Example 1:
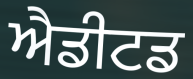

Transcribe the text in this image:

ਐਡੀਟਡ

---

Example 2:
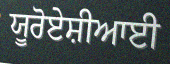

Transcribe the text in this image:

ਯੂਰੋਏਸ਼ੀਆਈ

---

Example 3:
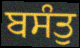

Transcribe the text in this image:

ਬਸੰਤੁ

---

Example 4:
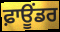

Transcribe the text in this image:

ਫ਼ਾਊਂਡਰ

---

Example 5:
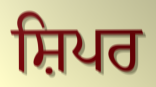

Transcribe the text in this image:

ਸ਼ਿਪਰ